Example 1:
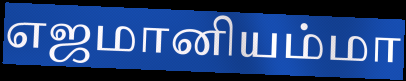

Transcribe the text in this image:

எஜமானியம்மா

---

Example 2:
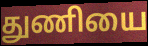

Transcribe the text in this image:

துணியை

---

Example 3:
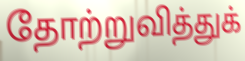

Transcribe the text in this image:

தோற்றுவித்துக்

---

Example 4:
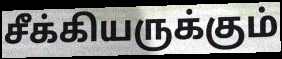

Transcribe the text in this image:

சீக்கியருக்கும்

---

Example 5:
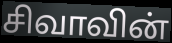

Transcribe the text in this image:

சிவாவின்